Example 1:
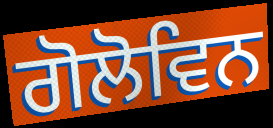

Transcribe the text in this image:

ਗੋਲੋਵਿਨ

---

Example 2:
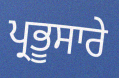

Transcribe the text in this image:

ਪ੍ਰਭੂਸਾਰੇ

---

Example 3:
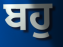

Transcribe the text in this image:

ਬਹੁ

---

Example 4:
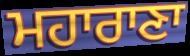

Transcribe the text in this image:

ਮਹਾਰਾਣਾ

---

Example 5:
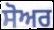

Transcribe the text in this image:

ਸੋਅਰ